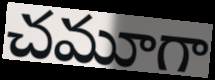
చమూగా